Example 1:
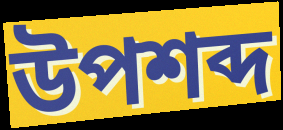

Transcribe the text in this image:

উপশব্দ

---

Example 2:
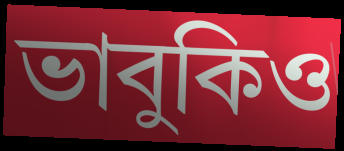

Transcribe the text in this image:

ভাবুকিও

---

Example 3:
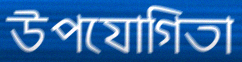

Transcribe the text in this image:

উপযোগিতা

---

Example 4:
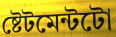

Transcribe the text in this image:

ষ্টেটমেন্টটো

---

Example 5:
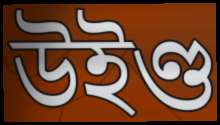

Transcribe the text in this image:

উইণ্ড